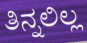
ತಿನ್ನಲಿಲ್ಲ